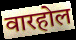
वारहोल